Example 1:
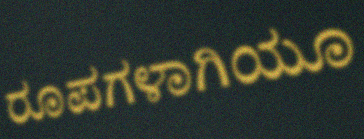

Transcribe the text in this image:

ರೂಪಗಳಾಗಿಯೂ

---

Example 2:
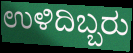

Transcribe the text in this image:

ಉಳಿದಿಬ್ಬರು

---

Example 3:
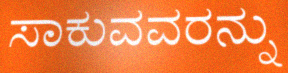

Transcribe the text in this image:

ಸಾಕುವವರನ್ನು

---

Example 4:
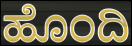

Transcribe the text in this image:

ಹೊಂದಿ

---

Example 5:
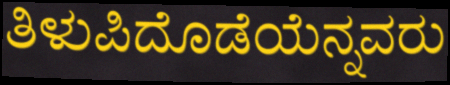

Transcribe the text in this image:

ತಿಳುಪಿದೊಡೆಯೆನ್ನವರು